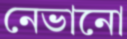
নেভানো